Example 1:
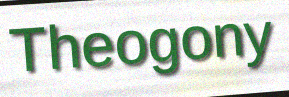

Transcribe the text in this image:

Theogony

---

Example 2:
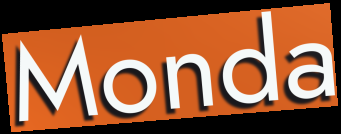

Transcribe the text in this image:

Monda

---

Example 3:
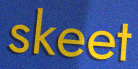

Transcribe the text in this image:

skeet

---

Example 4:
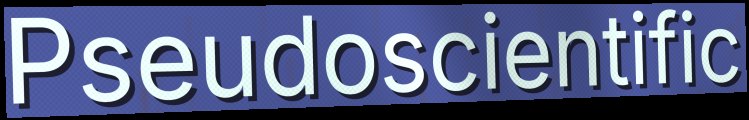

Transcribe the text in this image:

Pseudoscientific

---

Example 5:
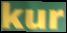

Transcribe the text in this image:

kur